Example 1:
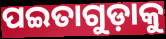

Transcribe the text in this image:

ପଇତାଗୁଡ଼ାକୁ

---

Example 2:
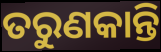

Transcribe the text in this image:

ତରୁଣକାନ୍ତି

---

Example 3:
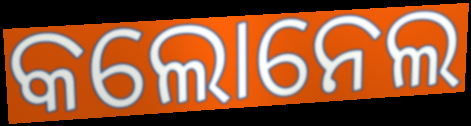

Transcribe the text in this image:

କଲୋନେଲ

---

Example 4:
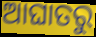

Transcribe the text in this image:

ଆଘାତରୁ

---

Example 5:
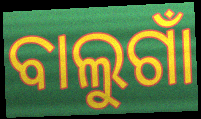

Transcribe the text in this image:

ବାଲୁଗାଁ